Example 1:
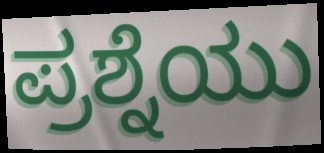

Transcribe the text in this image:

ಪ್ರಶ್ನೆಯು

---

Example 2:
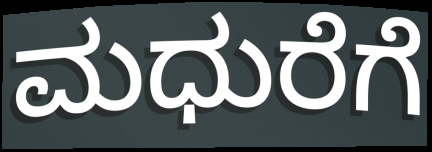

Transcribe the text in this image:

ಮಧುರೆಗೆ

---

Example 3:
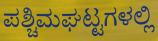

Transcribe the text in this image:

ಪಶ್ಚಿಮಘಟ್ಟಗಳಲ್ಲಿ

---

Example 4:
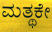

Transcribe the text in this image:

ಮತ್ಥಕೇ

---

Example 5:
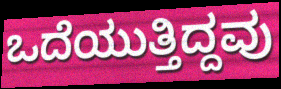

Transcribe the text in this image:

ಒದೆಯುತ್ತಿದ್ದವು